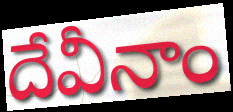
దేవీనాం